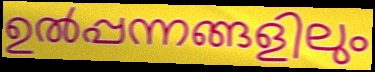
ഉൽപ്പന്നങ്ങളിലും